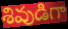
శివుడిగా